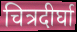
चित्रदीर्घा